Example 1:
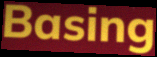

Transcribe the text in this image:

Basing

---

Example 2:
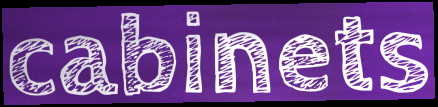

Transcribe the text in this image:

cabinets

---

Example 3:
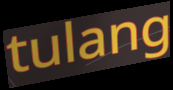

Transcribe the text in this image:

tulang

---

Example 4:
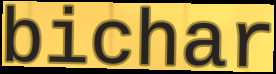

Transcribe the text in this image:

bichar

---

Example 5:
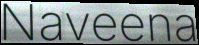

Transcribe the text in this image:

Naveena